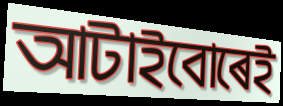
আটাইবোৰেই